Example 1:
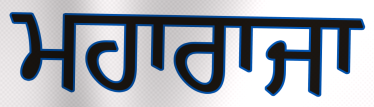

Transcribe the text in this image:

ਮਹਾਰਾਜਾ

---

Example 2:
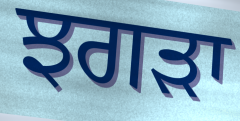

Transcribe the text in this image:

ਝਗੜਾ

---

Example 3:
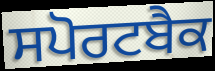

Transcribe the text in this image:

ਸਪੋਰਟਬੈਕ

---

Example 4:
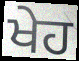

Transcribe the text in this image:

ਖੇਹ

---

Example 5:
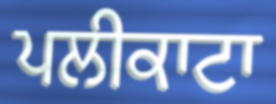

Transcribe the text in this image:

ਪਲੀਕਾਟਾ